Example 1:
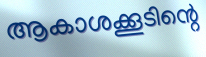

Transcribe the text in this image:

ആകാശക്കൂടിന്റെ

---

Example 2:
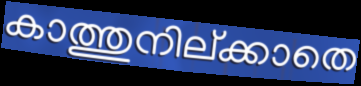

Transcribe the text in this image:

കാത്തുനില്ക്കാതെ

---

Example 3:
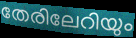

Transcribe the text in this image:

തേരിലേറിയും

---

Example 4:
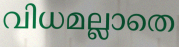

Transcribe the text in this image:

വിധമല്ലാതെ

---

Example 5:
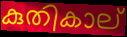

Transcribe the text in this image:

കുതികാല്